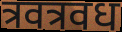
त्रवत्रवध